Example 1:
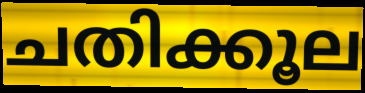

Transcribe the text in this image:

ചതിക്കൂല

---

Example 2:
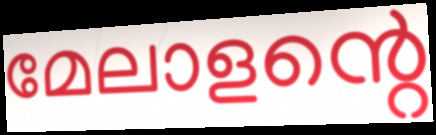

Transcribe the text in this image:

മേലാളന്റെ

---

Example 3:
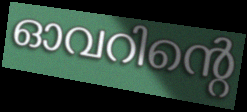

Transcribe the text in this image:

ഓവറിന്റെ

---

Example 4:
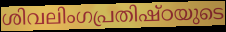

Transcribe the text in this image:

ശിവലിംഗപ്രതിഷ്ഠയുടെ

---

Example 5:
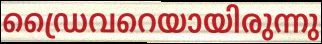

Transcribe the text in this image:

ഡ്രൈവറെയായിരുന്നു